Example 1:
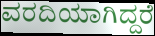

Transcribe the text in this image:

ವರದಿಯಾಗಿದ್ದರೆ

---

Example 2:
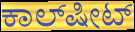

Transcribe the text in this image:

ಕಾಲ್‌ಷೀಟ್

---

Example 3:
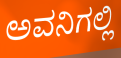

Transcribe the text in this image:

ಅವನಿಗಲ್ಲಿ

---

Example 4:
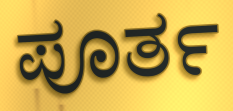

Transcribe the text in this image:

ಪೂರ್ತ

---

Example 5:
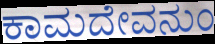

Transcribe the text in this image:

ಕಾಮದೇವನುಂ